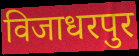
विजाधरपुर